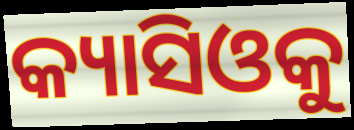
କ୍ୟାସିଓକୁ